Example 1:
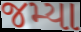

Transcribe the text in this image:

જમ્યા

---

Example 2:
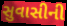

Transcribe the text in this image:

સુવાસીની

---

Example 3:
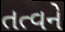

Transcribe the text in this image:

તત્વને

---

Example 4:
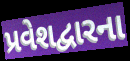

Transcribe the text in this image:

પ્રવેશદ્વારના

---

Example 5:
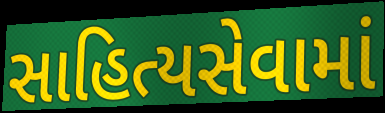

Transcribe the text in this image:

સાહિત્યસેવામાં